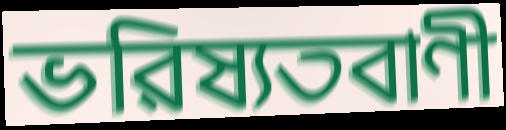
ভৱিষ্যতবাণী